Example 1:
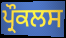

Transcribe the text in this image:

ਪ੍ਰੌਕਲਸ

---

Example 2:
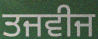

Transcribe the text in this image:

ਤਜਵੀਜ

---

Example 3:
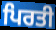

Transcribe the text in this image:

ਪਿਰਤੀ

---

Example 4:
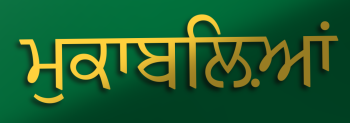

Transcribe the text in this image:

ਮੁਕਾਬਲ਼ਿਆਂ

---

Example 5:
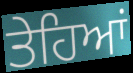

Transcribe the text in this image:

ਤੇਹਿਆਂ